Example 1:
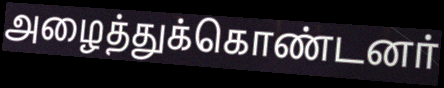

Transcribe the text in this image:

அழைத்துக்கொண்டனர்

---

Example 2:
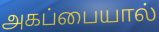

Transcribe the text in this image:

அகப்பையால்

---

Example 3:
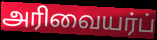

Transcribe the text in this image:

அரிவையர்ப்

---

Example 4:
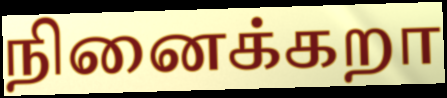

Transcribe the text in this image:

நினைக்கறா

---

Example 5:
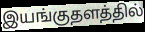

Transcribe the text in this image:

இயங்குதளத்தில்